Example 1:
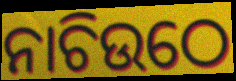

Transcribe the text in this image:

ନାଚିଉଠେ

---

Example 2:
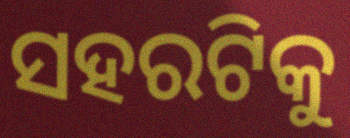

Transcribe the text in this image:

ସହରଟିକୁ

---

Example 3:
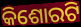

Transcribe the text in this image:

କିଶୋରଟି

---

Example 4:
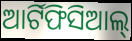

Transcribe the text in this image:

ଆର୍ଟିଫିସିଆଲ୍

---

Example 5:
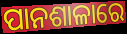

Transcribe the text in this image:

ପାନଶାଳାରେ